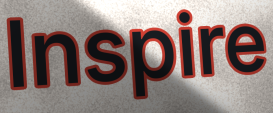
Inspire